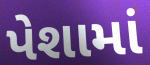
પેશામાં